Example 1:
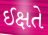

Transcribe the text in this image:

ઈક્ષતે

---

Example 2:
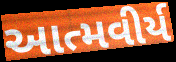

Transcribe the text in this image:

આત્મવીર્ય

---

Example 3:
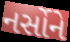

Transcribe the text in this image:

નર્સોને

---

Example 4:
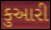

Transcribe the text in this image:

કુઆરી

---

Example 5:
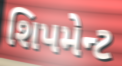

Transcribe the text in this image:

શિપમેન્ટ